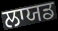
ਲਾਯਡ